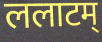
ललाटम्